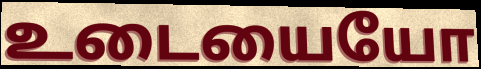
உடையையோ